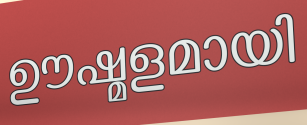
ഊഷ്മളമായി